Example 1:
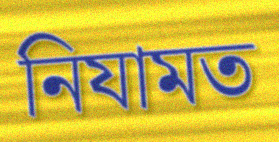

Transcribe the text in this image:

নিযামত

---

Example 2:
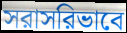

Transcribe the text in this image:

সরাসরিভাবে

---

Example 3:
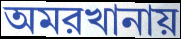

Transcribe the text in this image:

অমরখানায়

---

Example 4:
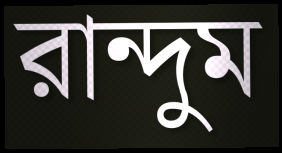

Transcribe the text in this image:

রান্দুম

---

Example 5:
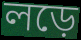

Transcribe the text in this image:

লড়ে